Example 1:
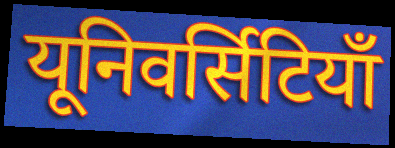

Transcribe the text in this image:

यूनिवर्सिटियाँ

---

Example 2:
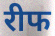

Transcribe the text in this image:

रीफ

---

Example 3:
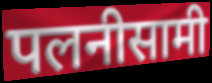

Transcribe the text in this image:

पलनीसामी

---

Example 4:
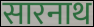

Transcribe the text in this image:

सारनाथ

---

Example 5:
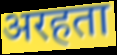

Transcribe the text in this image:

अरहता